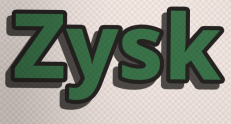
Zysk